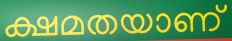
ക്ഷമതയാണ്